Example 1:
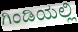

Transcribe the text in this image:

ಗಿಂಡಿಯಲ್ಲಿ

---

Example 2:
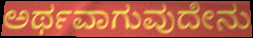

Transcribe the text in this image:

ಅರ್ಥವಾಗುವುದೇನು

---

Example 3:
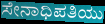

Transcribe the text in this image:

ಸೇನಾಧಿಪತಿಯು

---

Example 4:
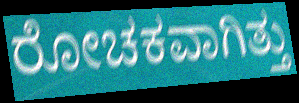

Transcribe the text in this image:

ರೋಚಕವಾಗಿತ್ತು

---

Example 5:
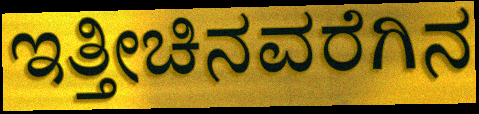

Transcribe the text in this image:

ಇತ್ತೀಚಿನವರೆಗಿನ